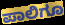
ಪಾಲಿಗೂ